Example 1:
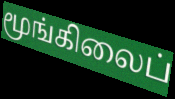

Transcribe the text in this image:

மூங்கிலைப்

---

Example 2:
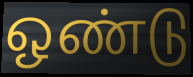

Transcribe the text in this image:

ஒண்டு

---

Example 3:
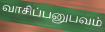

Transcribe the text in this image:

வாசிப்பனுபவம்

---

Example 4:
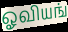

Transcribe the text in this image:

ஓவியங்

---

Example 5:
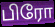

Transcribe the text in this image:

பிரோ